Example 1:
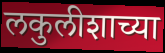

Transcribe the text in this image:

लकुलीशाच्या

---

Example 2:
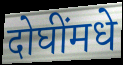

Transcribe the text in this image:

दोघींमधे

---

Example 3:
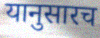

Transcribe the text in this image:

यानुसारच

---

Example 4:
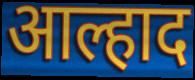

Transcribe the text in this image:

आल्हाद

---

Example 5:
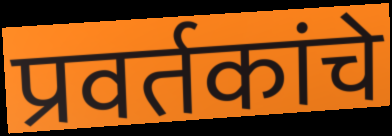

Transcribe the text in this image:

प्रवर्तकांचे